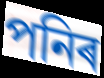
পনিৰ